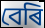
বেৰি